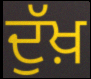
ਦੁੱਖ਼